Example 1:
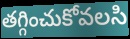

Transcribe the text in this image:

తగ్గించుకోవలసి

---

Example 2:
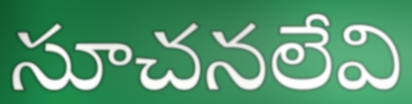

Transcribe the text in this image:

సూచనలేవి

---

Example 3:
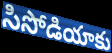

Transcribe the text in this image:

సిసోడియాకు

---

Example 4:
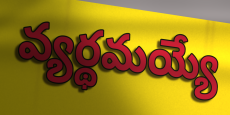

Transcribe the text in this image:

వ్యర్థమయ్యే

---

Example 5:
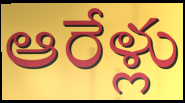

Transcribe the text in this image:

ఆరేళ్లు